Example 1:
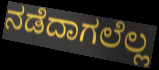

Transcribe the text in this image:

ನಡೆದಾಗಲೆಲ್ಲ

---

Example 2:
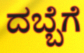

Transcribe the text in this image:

ದಬ್ಬೆಗೆ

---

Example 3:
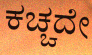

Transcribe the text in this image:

ಕಚ್ಚದೇ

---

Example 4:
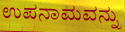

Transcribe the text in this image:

ಉಪನಾಮವನ್ನು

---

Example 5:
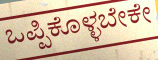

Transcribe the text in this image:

ಒಪ್ಪಿಕೊಳ್ಳಬೇಕೇ